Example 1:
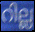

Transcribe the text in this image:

റില്ല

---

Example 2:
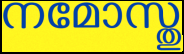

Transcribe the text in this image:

നമോസ്തു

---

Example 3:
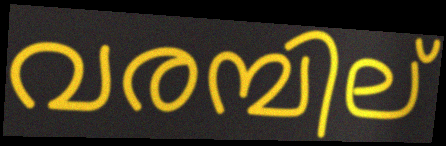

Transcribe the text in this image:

വരമ്പില്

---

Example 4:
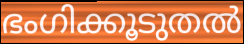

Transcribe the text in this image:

ഭംഗിക്കൂടുതൽ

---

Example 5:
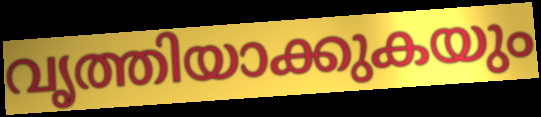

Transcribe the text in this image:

വൃത്തിയാക്കുകയും